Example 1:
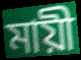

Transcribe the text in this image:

মায়ী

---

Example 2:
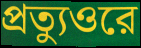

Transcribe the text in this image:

প্রত্যুওরে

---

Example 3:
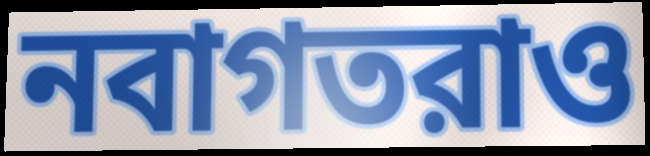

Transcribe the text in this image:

নবাগতরাও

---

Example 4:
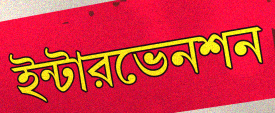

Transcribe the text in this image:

ইন্টারভেনশন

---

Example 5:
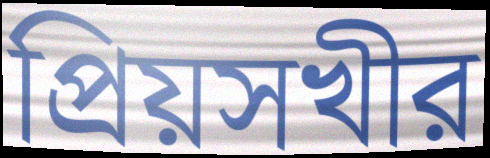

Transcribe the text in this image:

প্রিয়সখীর